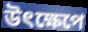
উৎক্ষেপে